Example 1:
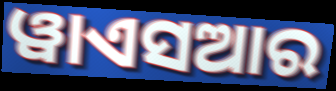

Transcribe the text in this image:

ୱାଏସଆର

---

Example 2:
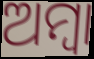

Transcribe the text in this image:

ଅମ୍ବା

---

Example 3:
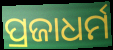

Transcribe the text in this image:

ପ୍ରଜାଧର୍ମ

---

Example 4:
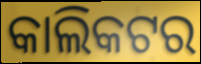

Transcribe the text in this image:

କାଲିକଟର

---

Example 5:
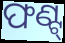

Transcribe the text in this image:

ଫଣ୍ଟ୍